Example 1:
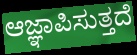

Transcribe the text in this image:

ಆಜ್ಞಾಪಿಸುತ್ತದೆ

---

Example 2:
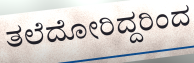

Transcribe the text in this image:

ತಲೆದೋರಿದ್ದರಿಂದ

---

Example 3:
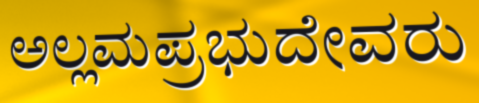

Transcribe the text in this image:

ಅಲ್ಲಮಪ್ರಭುದೇವರು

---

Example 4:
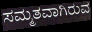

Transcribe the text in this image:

ಸಮ್ಮತವಾಗಿರುವ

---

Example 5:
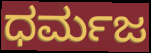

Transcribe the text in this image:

ಧರ್ಮಜ